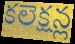
కలెక్షన్ల